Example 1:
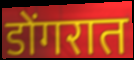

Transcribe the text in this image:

डोंगरात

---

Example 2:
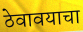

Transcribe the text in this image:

ठेवावयाचा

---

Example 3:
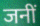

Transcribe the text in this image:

जनीं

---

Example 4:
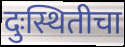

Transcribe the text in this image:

दुःस्थितीचा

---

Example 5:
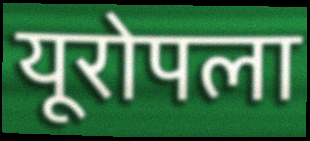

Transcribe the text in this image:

यूरोपला